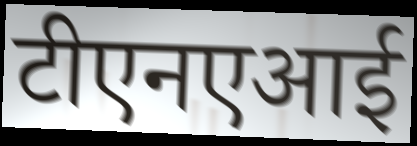
टीएनएआई